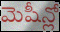
మెషీన్లో